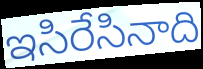
ఇసిరేసినాది